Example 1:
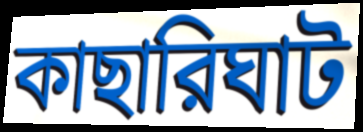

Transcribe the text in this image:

কাছারিঘাট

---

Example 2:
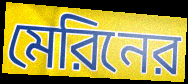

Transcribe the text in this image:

মেরিনের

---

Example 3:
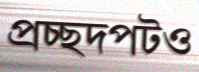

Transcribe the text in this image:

প্রচ্ছদপটও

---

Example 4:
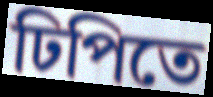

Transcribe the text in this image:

ঢিপিতে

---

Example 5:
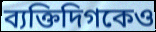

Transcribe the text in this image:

ব্যক্তিদিগকেও